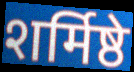
शर्मिष्ठे